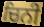
ਚਿਨੀ